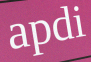
apdi